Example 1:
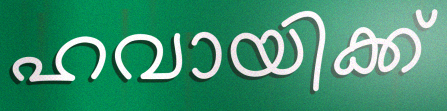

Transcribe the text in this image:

ഹവായിക്ക്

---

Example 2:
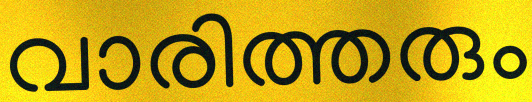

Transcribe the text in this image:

വാരിത്തരും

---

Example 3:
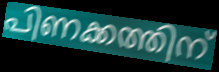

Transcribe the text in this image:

പിണക്കത്തിന്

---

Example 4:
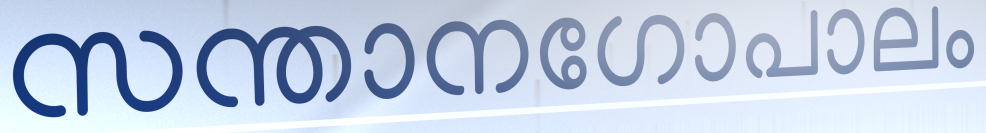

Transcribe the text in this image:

സന്താനഗോപാലം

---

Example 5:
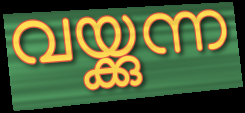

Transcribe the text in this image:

വയ്ക്കുന്ന